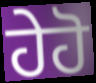
ਹੇਹੋ